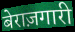
बेराज़गारी